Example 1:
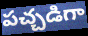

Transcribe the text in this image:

పచ్చడిగా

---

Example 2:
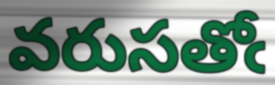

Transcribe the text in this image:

వరుసతోఁ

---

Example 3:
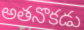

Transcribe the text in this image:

అతనొకడు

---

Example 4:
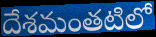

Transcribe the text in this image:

దేశమంతటిలో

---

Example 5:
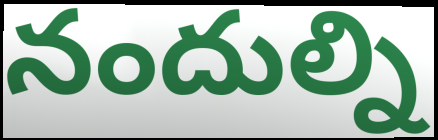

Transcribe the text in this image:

నందుల్ని